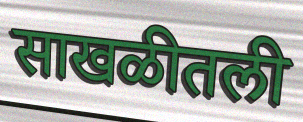
साखळीतली